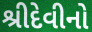
શ્રીદેવીનો